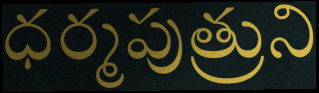
ధర్మపుత్రుని